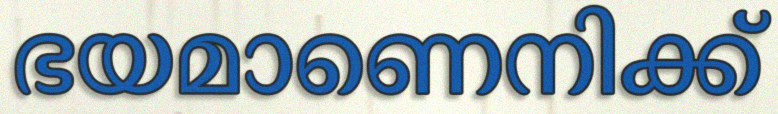
ഭയമാണെനിക്ക്